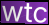
wtc